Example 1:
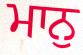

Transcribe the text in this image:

ਮਾਨੁ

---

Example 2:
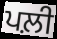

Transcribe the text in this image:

ਪਲ਼ੀ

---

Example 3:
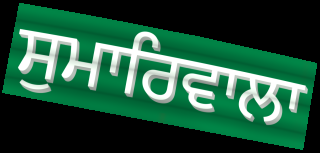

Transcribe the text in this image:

ਸੁਮਾਰਿਵਾਲਾ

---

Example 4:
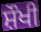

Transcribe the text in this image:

ਸ਼ੌਖੀ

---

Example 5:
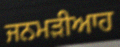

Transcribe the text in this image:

ਜਨਮੜੀਆਹ